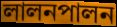
লালনপালন